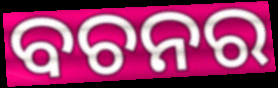
ବଚନର